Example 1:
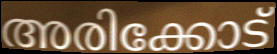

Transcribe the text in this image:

അരിക്കോട്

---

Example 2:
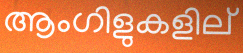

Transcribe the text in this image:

ആംഗിളുകളില്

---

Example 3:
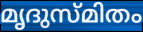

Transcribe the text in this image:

മൃദുസ്മിതം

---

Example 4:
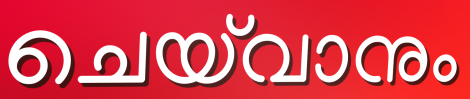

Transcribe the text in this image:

ചെയ്‌വാനും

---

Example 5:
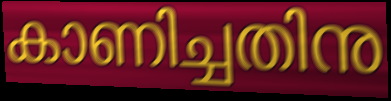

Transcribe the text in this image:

കാണിച്ചതിനു